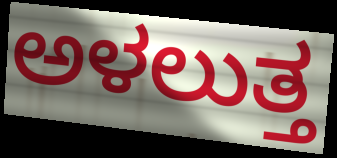
ಅಳಲುತ್ತ